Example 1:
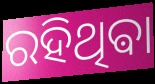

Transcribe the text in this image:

ରହିଥିଵା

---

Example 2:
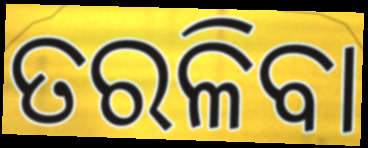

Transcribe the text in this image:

ତରଳିବା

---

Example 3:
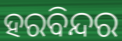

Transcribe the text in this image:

ହରବିନ୍ଦର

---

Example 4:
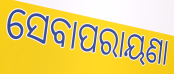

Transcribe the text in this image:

ସେବାପରାୟଣା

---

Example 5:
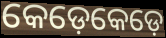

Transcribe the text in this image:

କେଡ଼େକେଡ଼େ